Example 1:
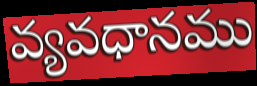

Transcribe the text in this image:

వ్యవధానము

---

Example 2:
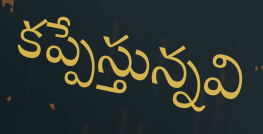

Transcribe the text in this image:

కప్పేస్తున్నవి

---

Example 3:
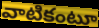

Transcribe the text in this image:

వాటికంటూ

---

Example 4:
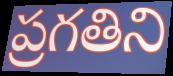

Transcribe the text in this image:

ప్రగతిని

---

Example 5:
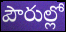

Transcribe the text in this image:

పౌరుల్లో